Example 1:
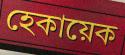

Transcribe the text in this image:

হেকায়েক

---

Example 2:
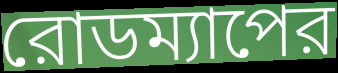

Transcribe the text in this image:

রোডম্যাপের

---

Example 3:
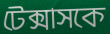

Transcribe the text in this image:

টেক্সাসকে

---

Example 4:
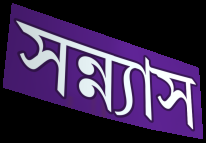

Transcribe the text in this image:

সন্ন্যাস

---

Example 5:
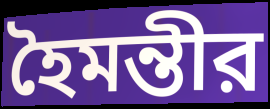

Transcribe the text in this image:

হৈমন্তীর